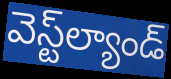
వెస్ట్‌ల్యాండ్